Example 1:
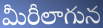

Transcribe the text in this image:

మీరీలాగున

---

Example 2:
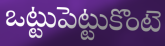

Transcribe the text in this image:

ఒట్టుపెట్టుకొంటె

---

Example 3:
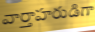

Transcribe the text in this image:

వార్తాహరుడిగా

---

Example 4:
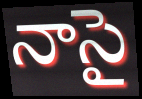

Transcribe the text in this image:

నాసై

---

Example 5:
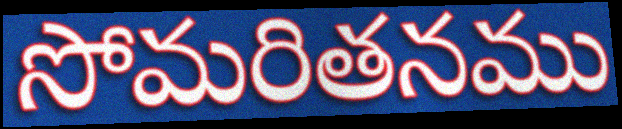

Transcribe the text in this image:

సోమరితనము